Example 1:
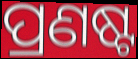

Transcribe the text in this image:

ପ୍ରଣଷ୍ଟ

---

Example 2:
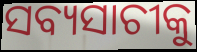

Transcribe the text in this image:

ସବ୍ୟସାଚୀକୁ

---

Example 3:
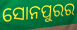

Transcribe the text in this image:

ସୋନପୁରର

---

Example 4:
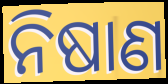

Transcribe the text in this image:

ନିଷାଣ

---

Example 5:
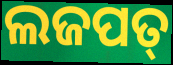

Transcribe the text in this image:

ଲଜପତ୍